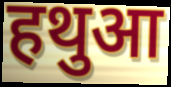
हथुआ